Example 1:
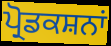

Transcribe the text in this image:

ਪ੍ਰੋਡਕਸ਼ਨਾਂ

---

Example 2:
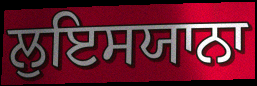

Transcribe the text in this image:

ਲੁਇਸਯਾਨਾ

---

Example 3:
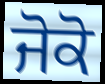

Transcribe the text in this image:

ਜੋਕੋ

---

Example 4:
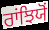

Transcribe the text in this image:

ਰਾਂਝਿਯੋਂ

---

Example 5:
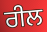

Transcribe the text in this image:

ਰੀਲ